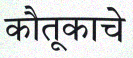
कौतूकाचे